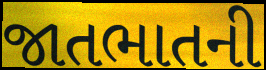
જાતભાતની